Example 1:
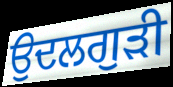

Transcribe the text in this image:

ਉਦਲਗੁੜੀ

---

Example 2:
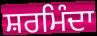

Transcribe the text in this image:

ਸ਼ਰਮਿੰਦਾ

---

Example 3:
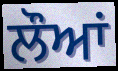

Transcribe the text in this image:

ਲੌਆਂ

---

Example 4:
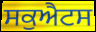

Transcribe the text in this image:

ਸਕੁਐਟਸ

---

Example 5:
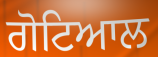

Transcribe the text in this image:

ਗੋਟਿਆਲ